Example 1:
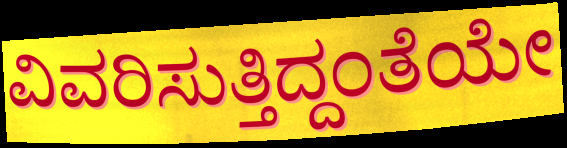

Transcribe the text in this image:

ವಿವರಿಸುತ್ತಿದ್ದಂತೆಯೇ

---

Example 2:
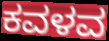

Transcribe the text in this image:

ಕವಳವ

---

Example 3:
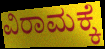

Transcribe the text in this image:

ವಿರಾಮಕ್ಕೆ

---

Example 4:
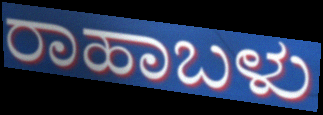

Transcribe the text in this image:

ರಾಹಾಬಳು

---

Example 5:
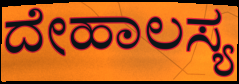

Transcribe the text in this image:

ದೇಹಾಲಸ್ಯ